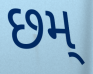
છમ્